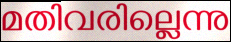
മതിവരില്ലെന്നു